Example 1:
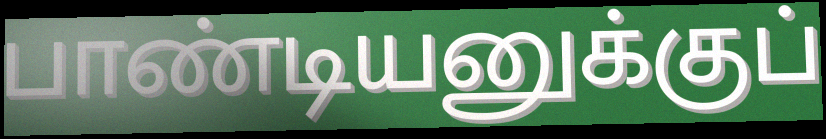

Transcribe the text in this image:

பாண்டியனுக்குப்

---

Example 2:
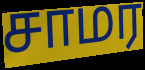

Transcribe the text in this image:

சாமர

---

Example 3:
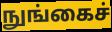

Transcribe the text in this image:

நுங்கைச்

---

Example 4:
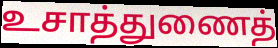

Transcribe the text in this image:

உசாத்துணைத்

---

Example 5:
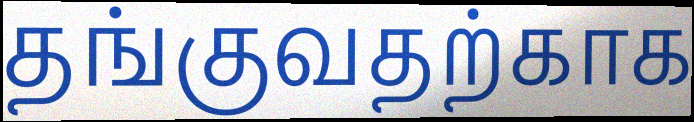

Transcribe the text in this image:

தங்குவதற்காக